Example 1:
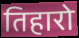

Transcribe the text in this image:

तिहारो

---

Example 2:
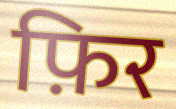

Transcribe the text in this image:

फ़िर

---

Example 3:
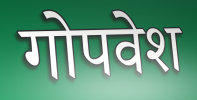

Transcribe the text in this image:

गोपवेश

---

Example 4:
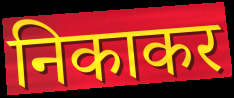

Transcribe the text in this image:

निकाकर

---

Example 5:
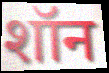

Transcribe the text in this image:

शॉन